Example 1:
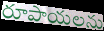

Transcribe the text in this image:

రూపాయలను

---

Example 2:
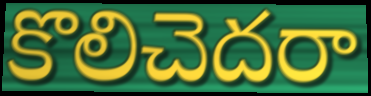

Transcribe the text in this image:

కొలిచెదరా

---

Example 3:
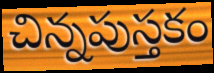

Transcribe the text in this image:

చిన్నపుస్తకం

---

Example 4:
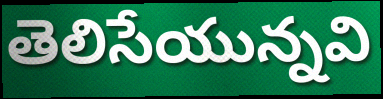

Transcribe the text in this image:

తెలిసేయున్నవి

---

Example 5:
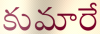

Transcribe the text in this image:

కుమారే